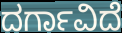
ದರ್ಗಾವಿದೆ